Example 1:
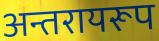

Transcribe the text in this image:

अन्तरायरूप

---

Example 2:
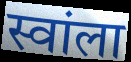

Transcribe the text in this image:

स्वांला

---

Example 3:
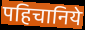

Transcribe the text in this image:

पहिचानिये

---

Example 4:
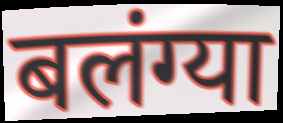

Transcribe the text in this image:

बलंग्या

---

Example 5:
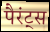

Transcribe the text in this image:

पैरंट्स